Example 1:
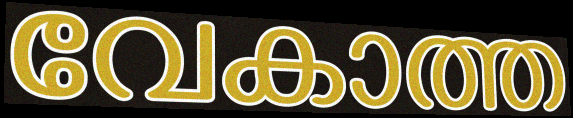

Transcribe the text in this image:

വേകാത്ത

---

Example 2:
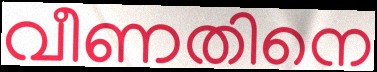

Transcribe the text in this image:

വീണതിനെ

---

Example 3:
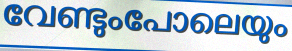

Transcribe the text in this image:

വേണ്ടുംപോലെയും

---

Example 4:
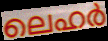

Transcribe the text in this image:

ലെഹർ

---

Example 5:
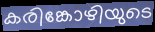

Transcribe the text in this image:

കരിങ്കോഴിയുടെ